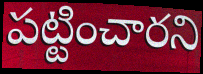
పట్టించారని